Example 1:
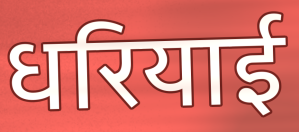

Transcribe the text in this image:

धरियाई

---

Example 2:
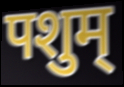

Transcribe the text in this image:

पशुम्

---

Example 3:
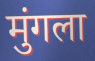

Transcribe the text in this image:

मुंगला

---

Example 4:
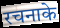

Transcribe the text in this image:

रचनाके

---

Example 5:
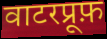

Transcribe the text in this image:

वाटरप्रूफ़